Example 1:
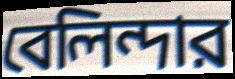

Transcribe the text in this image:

বেলিন্দার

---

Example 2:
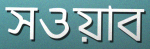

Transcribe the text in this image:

সওয়াব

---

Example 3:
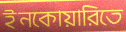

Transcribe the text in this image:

ইনকোয়ারিতে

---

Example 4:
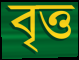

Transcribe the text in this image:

বৃত্ত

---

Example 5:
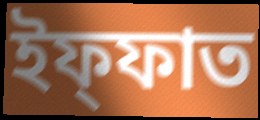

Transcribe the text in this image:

ইফ্ফাত